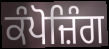
ਕੰਪੋਜ਼ਿੰਗ